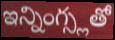
ఇన్నింగ్స్లతో